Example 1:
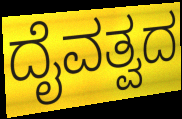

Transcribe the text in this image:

ದೈವತ್ವದ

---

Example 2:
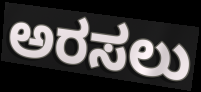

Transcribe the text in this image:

ಅರಸಲು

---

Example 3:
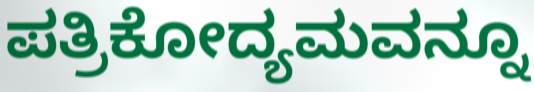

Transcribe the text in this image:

ಪತ್ರಿಕೋದ್ಯಮವನ್ನೂ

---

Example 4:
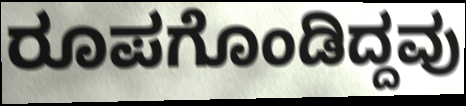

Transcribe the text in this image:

ರೂಪಗೊಂಡಿದ್ದವು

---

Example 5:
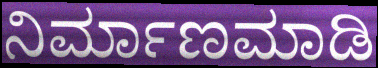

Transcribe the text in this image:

ನಿರ್ಮಾಣಮಾಡಿ